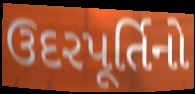
ઉદરપૂર્તિનો